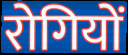
रोगियों